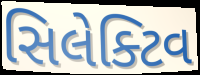
સિલેક્ટિવ